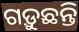
ଗଡ଼ୁଛନ୍ତି